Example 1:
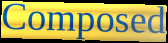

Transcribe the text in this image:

Composed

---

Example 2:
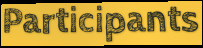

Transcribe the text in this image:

Participants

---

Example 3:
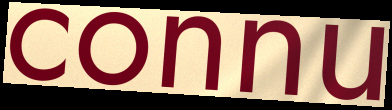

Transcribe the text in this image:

connu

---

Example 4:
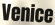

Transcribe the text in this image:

Venice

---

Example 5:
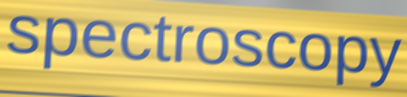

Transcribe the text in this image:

spectroscopy